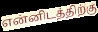
என்னிடத்திற்கு